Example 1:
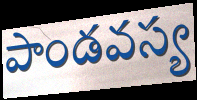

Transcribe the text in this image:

పాండవస్య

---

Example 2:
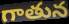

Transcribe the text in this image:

గాతున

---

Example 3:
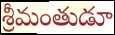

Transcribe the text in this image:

శ్రీమంతుడూ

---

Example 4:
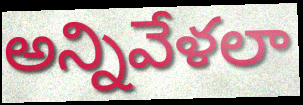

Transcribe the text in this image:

అన్నివేళలా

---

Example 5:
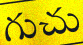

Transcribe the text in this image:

గుచు